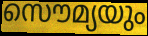
സൌമ്യയും